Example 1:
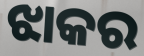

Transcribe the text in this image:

ଝାକର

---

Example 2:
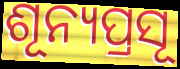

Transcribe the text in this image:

ଶୂନ୍ୟପ୍ରସୂ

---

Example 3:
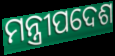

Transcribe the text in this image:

ମନ୍ତ୍ରୀପଦେଶ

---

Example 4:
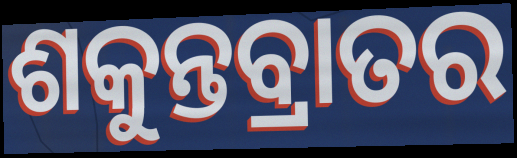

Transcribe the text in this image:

ଶକୁନ୍ତବ୍ରାତର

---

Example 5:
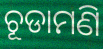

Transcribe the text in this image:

ଚୂଡାମଣି